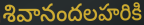
శివానందలహరికి